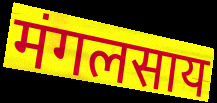
मंगलसाय